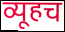
व्यूहच